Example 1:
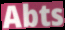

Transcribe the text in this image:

Abts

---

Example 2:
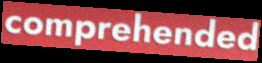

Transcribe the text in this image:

comprehended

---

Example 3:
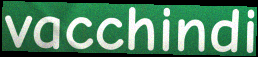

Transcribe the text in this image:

vacchindi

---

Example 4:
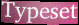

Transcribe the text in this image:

Typeset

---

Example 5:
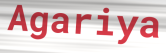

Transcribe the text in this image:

Agariya